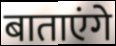
बाताएंगे